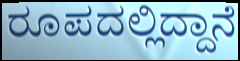
ರೂಪದಲ್ಲಿದ್ದಾನೆ